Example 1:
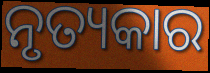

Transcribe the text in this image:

ନୃତ୍ୟକାର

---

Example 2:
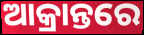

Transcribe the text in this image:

ଆକ୍ରାନ୍ତରେ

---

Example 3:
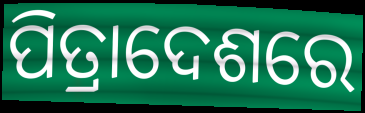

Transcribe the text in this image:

ପିତ୍ରାଦେଶରେ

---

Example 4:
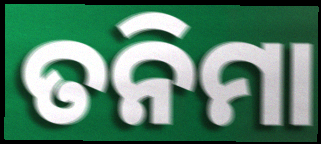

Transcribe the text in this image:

ତନିମା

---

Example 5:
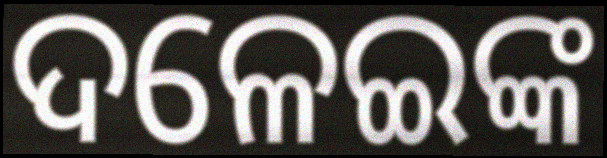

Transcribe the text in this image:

ଦଳେଇଙ୍କ